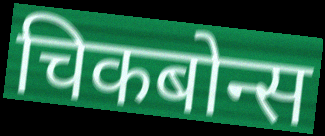
चिकबोन्स